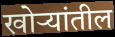
खोऱ्यांतील